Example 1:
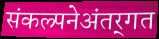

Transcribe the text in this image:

संकल्पनेअंतर्गत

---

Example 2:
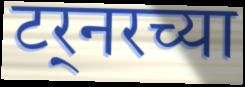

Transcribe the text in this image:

टर्नरच्या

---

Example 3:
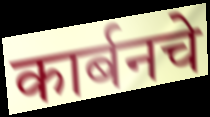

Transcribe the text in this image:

कार्बनचे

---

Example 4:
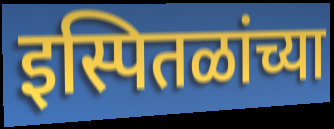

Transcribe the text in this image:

इस्पितळांच्या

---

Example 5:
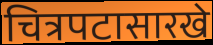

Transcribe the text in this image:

चित्रपटासारखे